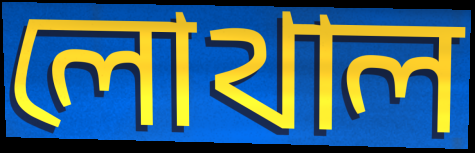
লোথাল